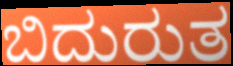
ಬಿದುರುತ